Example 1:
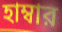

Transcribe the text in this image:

হাম্বার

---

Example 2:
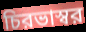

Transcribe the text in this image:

চিরভাস্বর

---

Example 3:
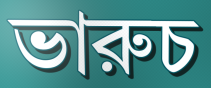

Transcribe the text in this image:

ভারুচ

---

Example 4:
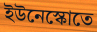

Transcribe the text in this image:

ইউনেস্কোতে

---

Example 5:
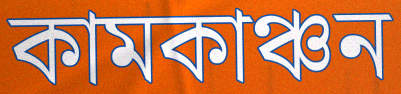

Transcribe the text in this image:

কামকাঞ্চন